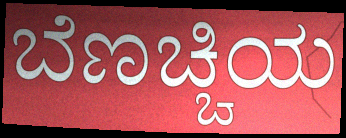
ಬೆಣಚ್ಚಿಯ